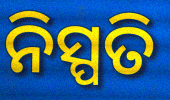
ନିସ୍ପତି